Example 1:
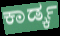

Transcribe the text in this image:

ಕಾರ್ಡ್ಕ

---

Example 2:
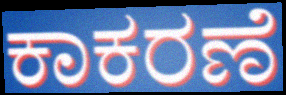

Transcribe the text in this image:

ಕಾಕರಣೆ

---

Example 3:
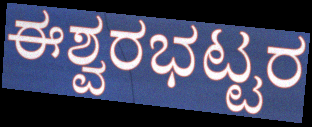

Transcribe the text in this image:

ಈಶ್ವರಭಟ್ಟರ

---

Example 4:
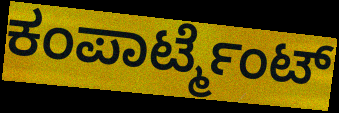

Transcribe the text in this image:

ಕಂಪಾರ್ಟ್ಮೆಂಟ್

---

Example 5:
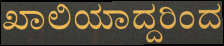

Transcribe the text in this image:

ಖಾಲಿಯಾದ್ದರಿಂದ